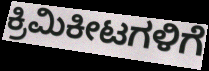
ಕ್ರಿಮಿಕೀಟಗಳಿಗೆ